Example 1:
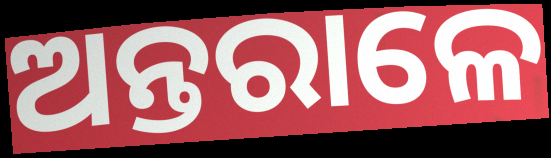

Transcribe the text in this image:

ଅନ୍ତରାଳେ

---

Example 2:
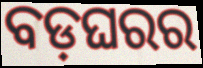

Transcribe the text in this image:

ବଡ଼ଘରର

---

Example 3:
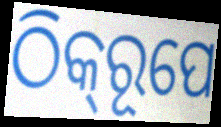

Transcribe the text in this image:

ଠିକ୍‍ରୂପେ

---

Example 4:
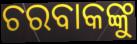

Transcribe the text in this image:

ଚରବାକଙ୍କୁ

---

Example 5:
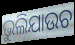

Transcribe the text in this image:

ଭୁଲିଯାଉଚ